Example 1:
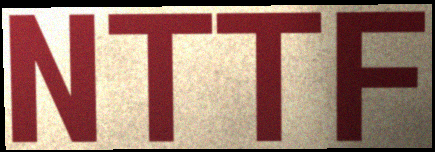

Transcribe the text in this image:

NTTF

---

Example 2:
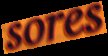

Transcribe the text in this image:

sores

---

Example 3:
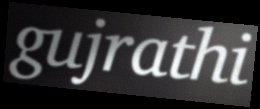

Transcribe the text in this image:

gujrathi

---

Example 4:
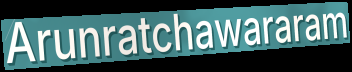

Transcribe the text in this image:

Arunratchawararam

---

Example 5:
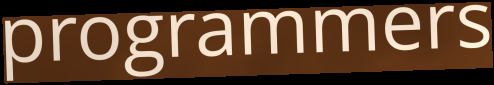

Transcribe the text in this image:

programmers